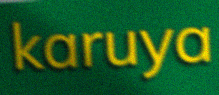
karuya